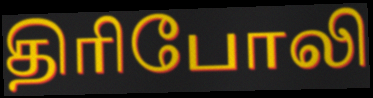
திரிபோலி